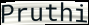
Pruthi